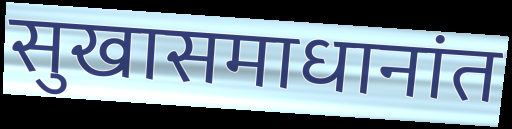
सुखासमाधानांत